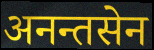
अनन्तसेन